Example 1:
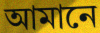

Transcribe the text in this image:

আমানে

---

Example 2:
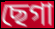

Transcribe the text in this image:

ছেগা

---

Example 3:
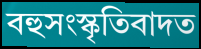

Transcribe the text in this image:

বহুসংস্কৃতিবাদত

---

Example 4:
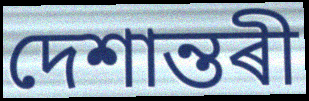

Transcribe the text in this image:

দেশান্তৰী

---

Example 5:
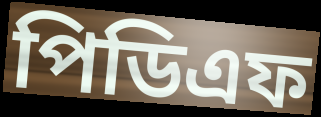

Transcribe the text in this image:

পিডিএফ